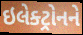
ઇલેક્ટ્રોનને